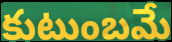
కుటుంబమే